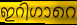
ഇറിഗാറെ